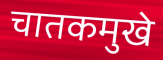
चातकमुखे